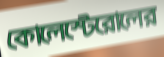
কোলেস্টেরোলের